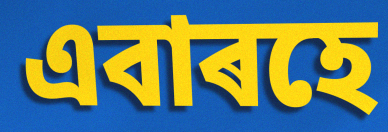
এবাৰহে